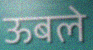
ऊबले